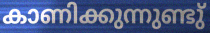
കാണിക്കുന്നുണ്ടു്